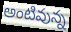
అంటివున్న